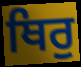
ਥਿਰੁ